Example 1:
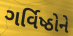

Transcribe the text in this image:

ગર્વિષ્ઠોને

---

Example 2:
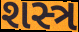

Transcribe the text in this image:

શસ્ત્ર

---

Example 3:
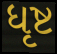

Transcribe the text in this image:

ધૃષ્ટ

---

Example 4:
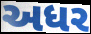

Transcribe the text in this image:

અધર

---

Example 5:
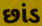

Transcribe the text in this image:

છાંડ